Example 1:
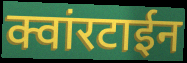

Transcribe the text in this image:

क्वांरटाईन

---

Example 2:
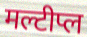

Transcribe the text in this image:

मल्टीप्ल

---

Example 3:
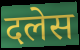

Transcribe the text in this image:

दलेस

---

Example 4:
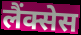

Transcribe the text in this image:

लैंक्सेस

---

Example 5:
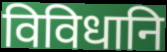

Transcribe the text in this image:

विविधानि